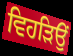
ਵਿਹੜਿਉਂ